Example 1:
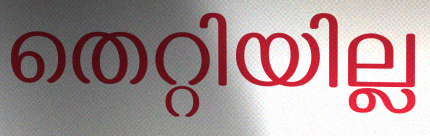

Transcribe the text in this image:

തെറ്റിയില്ല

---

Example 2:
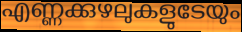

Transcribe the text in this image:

എണ്ണക്കുഴലുകളുടേയും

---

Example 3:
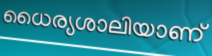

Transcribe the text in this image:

ധൈര്യശാലിയാണ്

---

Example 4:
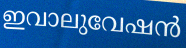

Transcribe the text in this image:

ഇവാലുവേഷൻ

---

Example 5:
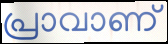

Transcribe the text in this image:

പ്രാവാണ്